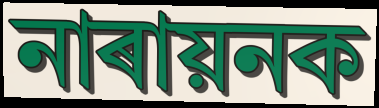
নাৰায়নক